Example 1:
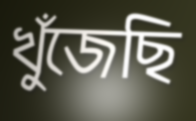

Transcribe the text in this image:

খুঁজেছি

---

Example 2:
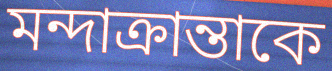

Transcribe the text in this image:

মন্দাক্রান্তাকে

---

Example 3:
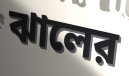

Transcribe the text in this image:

ঝালের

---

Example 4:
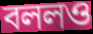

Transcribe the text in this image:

বললও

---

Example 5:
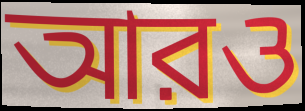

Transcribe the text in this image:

আরও